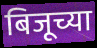
बिजूच्या